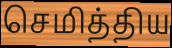
செமித்திய